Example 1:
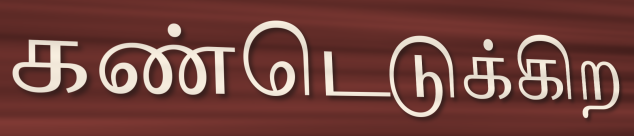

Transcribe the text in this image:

கண்டெடுக்கிற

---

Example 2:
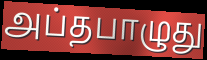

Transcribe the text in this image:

அப்தபாழுது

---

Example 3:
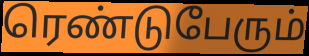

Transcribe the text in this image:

ரெண்டுபேரும்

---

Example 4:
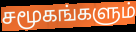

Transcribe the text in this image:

சமூகங்களும்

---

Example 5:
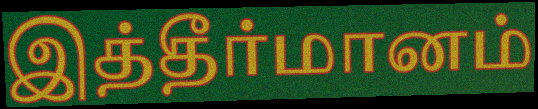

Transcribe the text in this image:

இத்தீர்மானம்